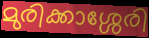
മുരിക്കാശ്ശേരി